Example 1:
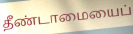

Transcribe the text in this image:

தீண்டாமையைப்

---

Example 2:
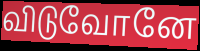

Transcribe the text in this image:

விடுவோனே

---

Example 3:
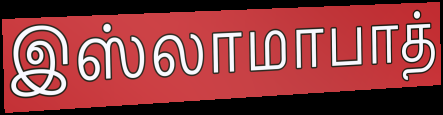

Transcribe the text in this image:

இஸ்லாமாபாத்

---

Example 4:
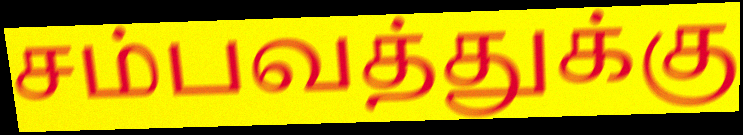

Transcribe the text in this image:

சம்பவத்துக்கு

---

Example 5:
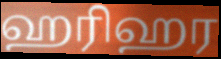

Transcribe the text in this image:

ஹரிஹர